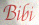
Bibi